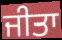
ਜੀਤਾ